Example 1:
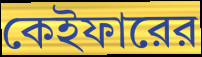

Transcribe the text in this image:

কেইফারের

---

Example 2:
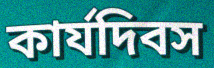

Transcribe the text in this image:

কার্যদিবস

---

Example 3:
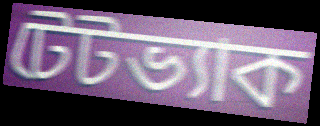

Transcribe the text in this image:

টেটভ্যাক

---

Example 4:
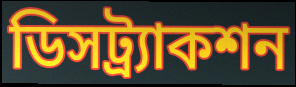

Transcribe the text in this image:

ডিসট্র্যাকশন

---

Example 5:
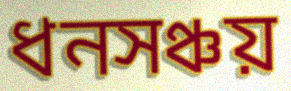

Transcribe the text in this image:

ধনসঞ্চয়